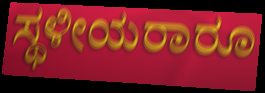
ಸ್ಥಳೀಯರಾರೂ